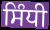
ਸਿੰਧੀ